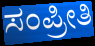
ಸಂಪ್ರೀತಿ